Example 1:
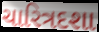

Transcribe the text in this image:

ચારિત્રદશા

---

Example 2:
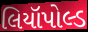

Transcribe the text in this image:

લિયૉપોલ્ડ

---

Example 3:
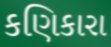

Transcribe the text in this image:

કણિકારા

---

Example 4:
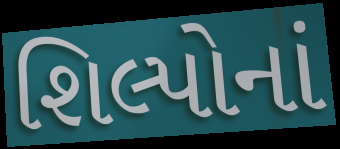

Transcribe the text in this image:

શિલ્પોનાં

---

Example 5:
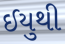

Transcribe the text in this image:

ઈયુથી